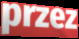
przez